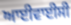
ਆਈਵਾਈਸੀ